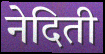
नेदिती